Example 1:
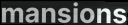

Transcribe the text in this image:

mansions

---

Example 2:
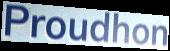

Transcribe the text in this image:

Proudhon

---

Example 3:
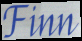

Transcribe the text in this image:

Finn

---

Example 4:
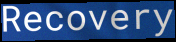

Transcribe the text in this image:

Recovery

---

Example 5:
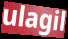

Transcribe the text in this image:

ulagil